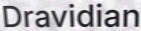
Dravidian